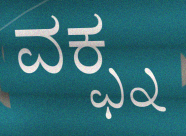
ವಕ್ಫ್ನ